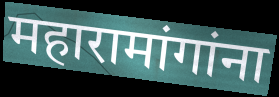
महारामांगांना